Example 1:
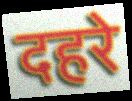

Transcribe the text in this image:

दहरे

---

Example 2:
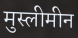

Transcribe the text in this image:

मुस्लीमीन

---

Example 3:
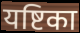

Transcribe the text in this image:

यष्टिका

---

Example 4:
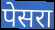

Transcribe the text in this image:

पेसरा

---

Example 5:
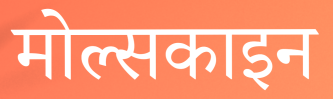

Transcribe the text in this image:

मोल्सकाइन